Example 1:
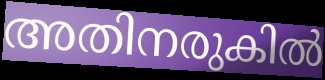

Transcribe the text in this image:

അതിനരുകിൽ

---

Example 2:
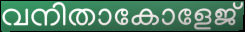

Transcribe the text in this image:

വനിതാകോളേജ്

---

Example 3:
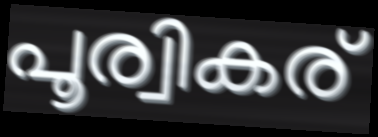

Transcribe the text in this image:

പൂര്വികര്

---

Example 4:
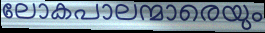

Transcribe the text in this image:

ലോകപാലന്മാരെയും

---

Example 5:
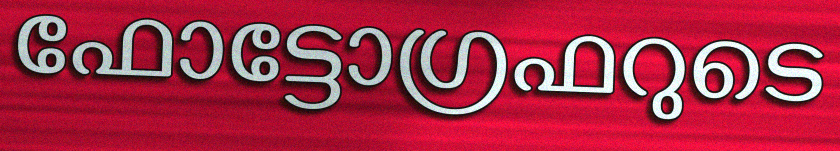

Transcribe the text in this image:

ഫോട്ടോഗ്രഫറുടെ